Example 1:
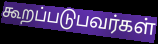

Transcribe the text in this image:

கூறப்படுபவர்கள்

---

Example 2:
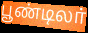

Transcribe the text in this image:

பூண்டிலர்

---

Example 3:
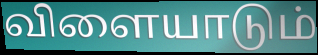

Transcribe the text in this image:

விளையாடும்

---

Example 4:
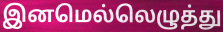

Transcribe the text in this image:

இனமெல்லெழுத்து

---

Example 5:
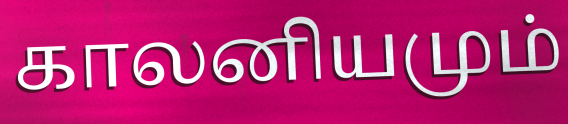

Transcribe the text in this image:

காலனியமும்